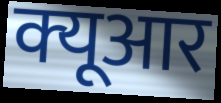
क्‍यूआर